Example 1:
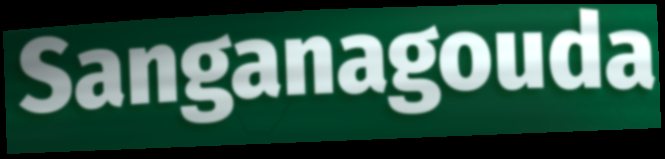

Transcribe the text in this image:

Sanganagouda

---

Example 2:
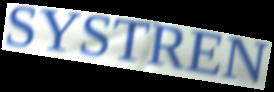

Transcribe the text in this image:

SYSTREN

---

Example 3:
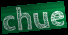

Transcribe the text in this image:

chue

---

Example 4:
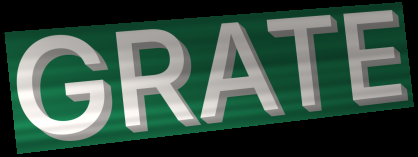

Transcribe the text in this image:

GRATE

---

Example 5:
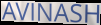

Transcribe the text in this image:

AVINASH